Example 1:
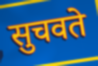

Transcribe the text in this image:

सुचवते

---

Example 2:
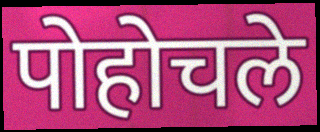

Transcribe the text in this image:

पोहोचले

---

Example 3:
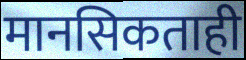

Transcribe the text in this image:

मानसिकताही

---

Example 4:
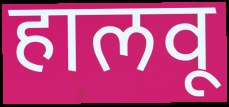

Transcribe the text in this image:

हालवू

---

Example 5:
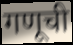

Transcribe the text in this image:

गणूची